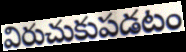
విరుచుకుపడటం